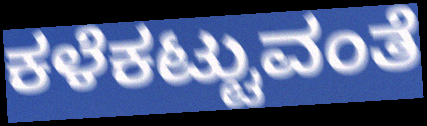
ಕಳೆಕಟ್ಟುವಂತೆ